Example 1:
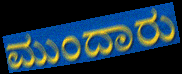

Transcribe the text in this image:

ಮುಂದಾರು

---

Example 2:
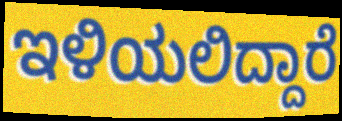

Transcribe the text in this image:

ಇಳಿಯಲಿದ್ದಾರೆ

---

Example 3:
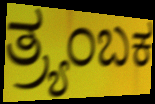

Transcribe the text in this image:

ತ್ರ್ಯಂಬಕ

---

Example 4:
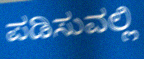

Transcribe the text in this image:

ಪಡಿಸುವಲ್ಲಿ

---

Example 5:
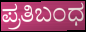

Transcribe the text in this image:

ಪ್ರತಿಬಂಧ